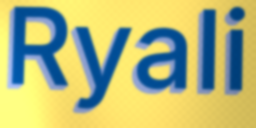
Ryali